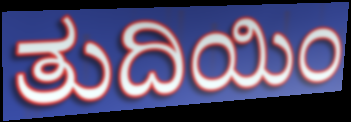
ತುದಿಯಿಂ